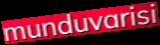
munduvarisi